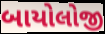
બાયોલોજી